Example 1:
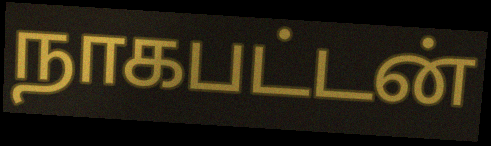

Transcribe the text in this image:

நாகபட்டன்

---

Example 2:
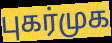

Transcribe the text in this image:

புகர்முக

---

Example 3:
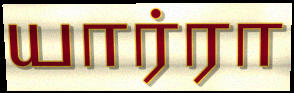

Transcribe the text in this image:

யார்ரா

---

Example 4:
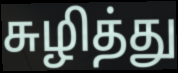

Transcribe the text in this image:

சுழித்து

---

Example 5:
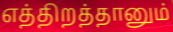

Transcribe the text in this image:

எத்திறத்தானும்